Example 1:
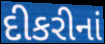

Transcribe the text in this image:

દીકરીનાં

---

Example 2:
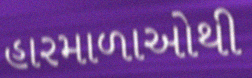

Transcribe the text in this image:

હારમાળાઓથી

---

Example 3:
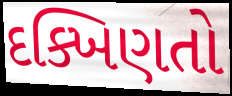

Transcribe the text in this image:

દક્ખિણતો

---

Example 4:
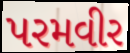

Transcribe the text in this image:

પરમવીર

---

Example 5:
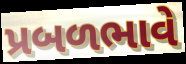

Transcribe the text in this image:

પ્રબળભાવે